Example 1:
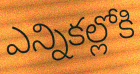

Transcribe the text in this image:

ఎన్నికల్లోకి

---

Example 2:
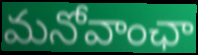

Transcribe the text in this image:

మనోవాంఛా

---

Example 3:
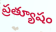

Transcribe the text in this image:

ప్రత్యూషం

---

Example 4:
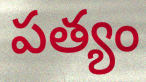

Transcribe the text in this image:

పత్యం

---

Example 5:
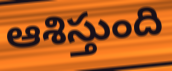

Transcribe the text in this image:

ఆశిస్తుంది